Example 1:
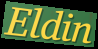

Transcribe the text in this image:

Eldin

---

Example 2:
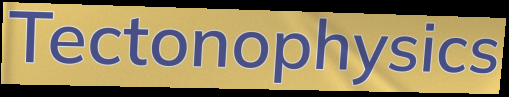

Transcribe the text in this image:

Tectonophysics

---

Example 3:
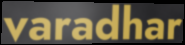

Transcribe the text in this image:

varadhar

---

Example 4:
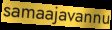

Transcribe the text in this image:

samaajavannu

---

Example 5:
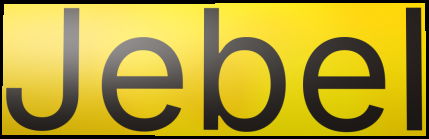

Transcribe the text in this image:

Jebel